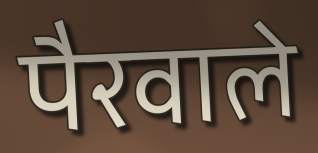
पैरवाले